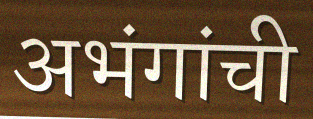
अभंगांची